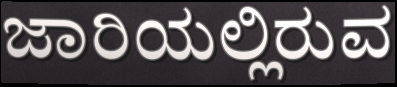
ಜಾರಿಯಲ್ಲಿರುವ